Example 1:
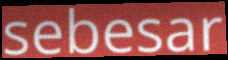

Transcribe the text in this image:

sebesar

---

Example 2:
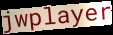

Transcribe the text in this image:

jwplayer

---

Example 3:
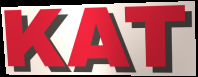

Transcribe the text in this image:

KAT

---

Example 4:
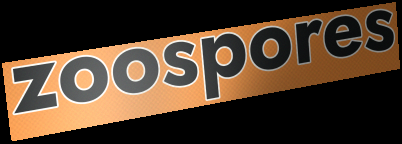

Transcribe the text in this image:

zoospores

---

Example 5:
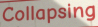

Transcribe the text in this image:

Collapsing